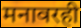
मनावरही